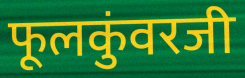
फूलकुंवरजी